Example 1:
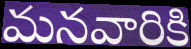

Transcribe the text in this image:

మనవారికి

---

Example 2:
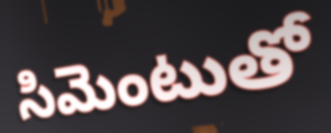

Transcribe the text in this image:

సిమెంటుతో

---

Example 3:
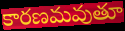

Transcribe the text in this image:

కారణమవుతూ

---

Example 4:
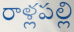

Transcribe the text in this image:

రాళ్లపల్లి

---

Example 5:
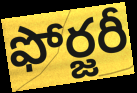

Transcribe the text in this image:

ఫోర్జరీ